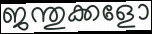
ജന്തുക്കളോ